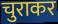
चुराकर